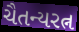
ચૈતન્યરત્ન